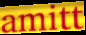
amitt